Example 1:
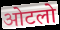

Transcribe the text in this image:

ओटलो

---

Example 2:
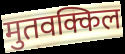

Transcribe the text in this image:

मुतवक्किल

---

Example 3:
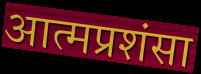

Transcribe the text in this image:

आत्मप्रशंसा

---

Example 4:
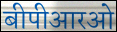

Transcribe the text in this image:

बीपीआरओ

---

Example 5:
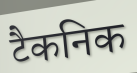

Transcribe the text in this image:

टैकनिक